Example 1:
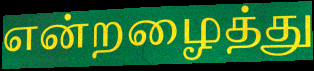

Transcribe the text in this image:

என்றழைத்து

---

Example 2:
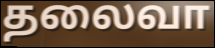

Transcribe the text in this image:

தலைவா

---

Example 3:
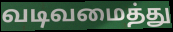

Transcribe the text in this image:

வடிவமைத்து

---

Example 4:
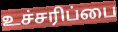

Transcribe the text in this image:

உச்சரிப்பை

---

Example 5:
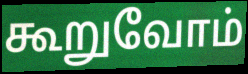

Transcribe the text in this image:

கூறுவோம்